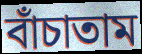
বাঁচাতাম